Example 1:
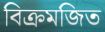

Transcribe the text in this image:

বিক্রমজিত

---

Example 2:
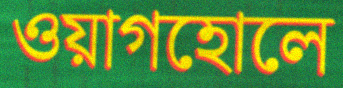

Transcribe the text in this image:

ওয়াগহোলে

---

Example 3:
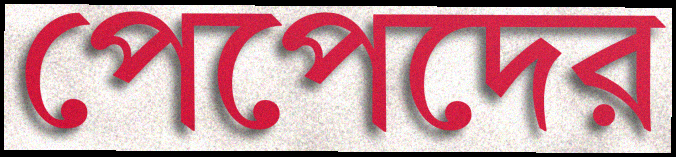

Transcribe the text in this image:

পেপেদের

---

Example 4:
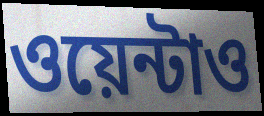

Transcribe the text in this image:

ওয়েন্টাও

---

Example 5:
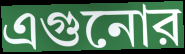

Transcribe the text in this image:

এগুনোর